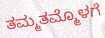
ತಮ್ಮತಮ್ಮೊಳಗೆ